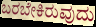
ಬರಬೇಕಿರುವುದು